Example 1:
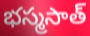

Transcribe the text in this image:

భస్మసాత్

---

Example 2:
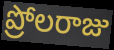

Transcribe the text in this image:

ప్రోలరాజు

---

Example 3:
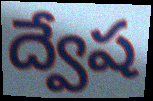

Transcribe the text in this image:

ద్వేష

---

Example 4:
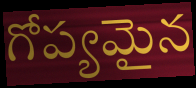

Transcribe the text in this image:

గోప్యమైన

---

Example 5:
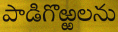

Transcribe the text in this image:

పాడిగొఱ్ఱలను